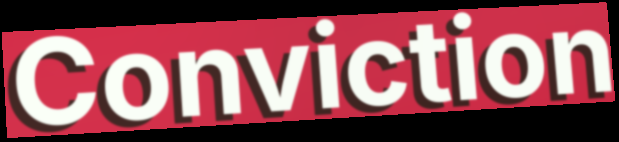
Conviction